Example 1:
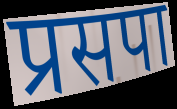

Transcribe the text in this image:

प्रसपा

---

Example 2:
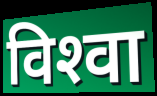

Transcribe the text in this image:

विश्‍वा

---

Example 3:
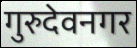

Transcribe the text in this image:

गुरुदेवनगर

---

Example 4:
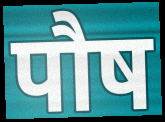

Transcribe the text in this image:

पौष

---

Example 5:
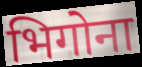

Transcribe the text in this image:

भिगोना